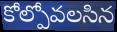
కోల్పోవలసిన